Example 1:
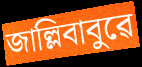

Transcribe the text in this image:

জাল্লিবাবুৱে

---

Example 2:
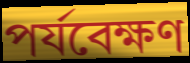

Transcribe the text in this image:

পৰ্যবেক্ষণ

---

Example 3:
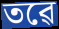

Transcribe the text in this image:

তৱে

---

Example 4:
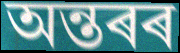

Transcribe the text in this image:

অন্তৰৰ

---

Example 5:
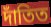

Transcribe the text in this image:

দাঁতিত